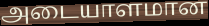
அடையாளமான